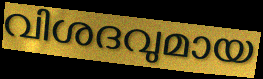
വിശദവുമായ